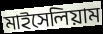
মাইসেলিয়াম